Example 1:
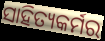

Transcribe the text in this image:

ସାହିତ୍ୟକର୍ମର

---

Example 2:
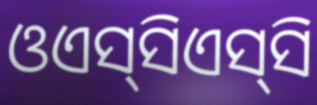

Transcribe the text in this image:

ଓଏସ୍‌ସିଏସ୍‌ସି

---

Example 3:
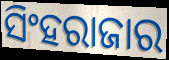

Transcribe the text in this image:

ସିଂହରାଜାର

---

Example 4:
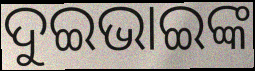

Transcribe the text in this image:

ଦୁଇଭାଇଙ୍କ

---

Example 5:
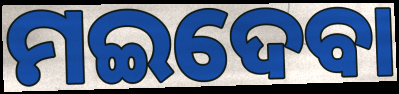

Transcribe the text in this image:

ମଇଦେବା